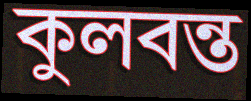
কুলবন্ত